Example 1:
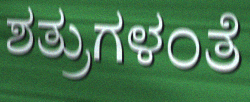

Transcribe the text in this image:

ಶತ್ರುಗಳಂತೆ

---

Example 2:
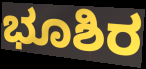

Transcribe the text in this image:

ಭೂಶಿರ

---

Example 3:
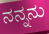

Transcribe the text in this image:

ನನ್ನನು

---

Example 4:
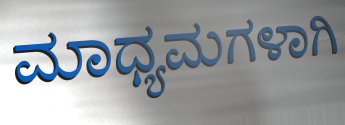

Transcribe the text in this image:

ಮಾಧ್ಯಮಗಳಾಗಿ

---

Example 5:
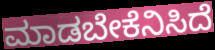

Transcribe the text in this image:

ಮಾಡಬೇಕೆನಿಸಿದೆ